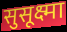
सुसूक्ष्मा